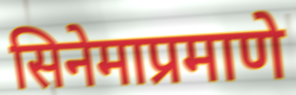
सिनेमाप्रमाणे